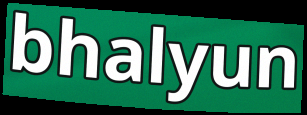
bhalyun